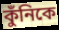
কুঁনিকে